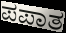
ಪಪಾತ